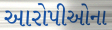
આરોપીઓના